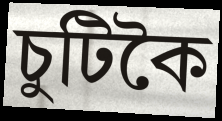
চুটিকৈ